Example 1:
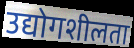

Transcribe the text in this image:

उद्योगशीलता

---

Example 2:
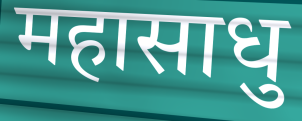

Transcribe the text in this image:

महासाधु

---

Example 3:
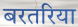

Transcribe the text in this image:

बरतरिया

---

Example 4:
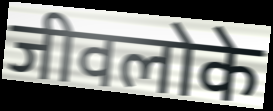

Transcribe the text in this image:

जीवलोके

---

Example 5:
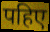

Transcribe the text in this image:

पहिए